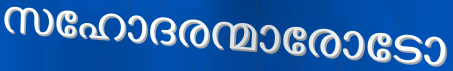
സഹോദരന്മാരോടോ